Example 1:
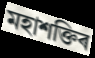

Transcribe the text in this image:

মহাশক্তিৰ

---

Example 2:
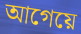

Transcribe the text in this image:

আগেয়ে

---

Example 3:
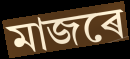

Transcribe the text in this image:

মাজৰে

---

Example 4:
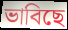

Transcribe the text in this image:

ভাবিছে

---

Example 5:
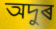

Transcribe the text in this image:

অদুৰ